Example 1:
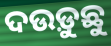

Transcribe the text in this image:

ଦଉଡ଼ୁଛୁ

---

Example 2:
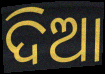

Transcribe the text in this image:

ଦିଆ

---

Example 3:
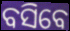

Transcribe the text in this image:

ବସିବେ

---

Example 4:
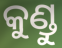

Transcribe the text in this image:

କୁଣ୍ଡୁ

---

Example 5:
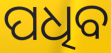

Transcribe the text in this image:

ପଧିବ